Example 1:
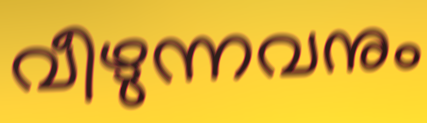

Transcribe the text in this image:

വീഴുന്നവനും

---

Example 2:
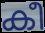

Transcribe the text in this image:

കീ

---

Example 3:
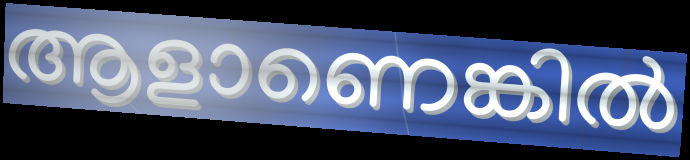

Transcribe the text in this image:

ആളാണെങ്കിൽ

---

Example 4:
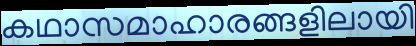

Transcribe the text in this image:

കഥാസമാഹാരങ്ങളിലായി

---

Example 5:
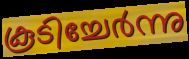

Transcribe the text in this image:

കൂടിച്ചേർന്നു